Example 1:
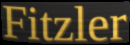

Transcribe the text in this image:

Fitzler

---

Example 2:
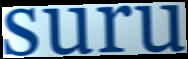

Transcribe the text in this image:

suru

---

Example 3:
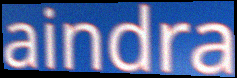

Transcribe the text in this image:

aindra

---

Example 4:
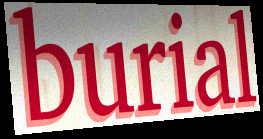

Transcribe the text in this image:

burial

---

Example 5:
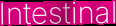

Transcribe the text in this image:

Intestinal